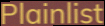
Plainlist